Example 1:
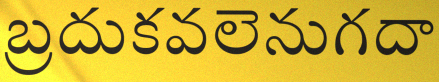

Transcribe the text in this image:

బ్రదుకవలెనుగదా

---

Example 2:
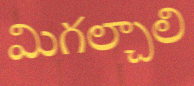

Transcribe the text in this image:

మిగల్చాలి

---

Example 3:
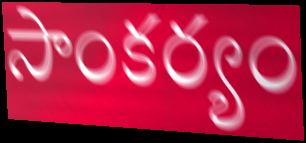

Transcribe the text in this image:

సాంకర్యం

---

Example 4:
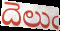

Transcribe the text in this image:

దెలుఁ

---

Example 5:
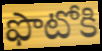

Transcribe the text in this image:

ఫొటోకి